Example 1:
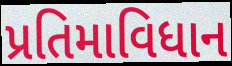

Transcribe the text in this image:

પ્રતિમાવિધાન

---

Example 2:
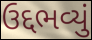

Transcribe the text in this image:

ઉદ્દભવ્યું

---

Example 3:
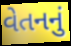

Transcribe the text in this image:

વેતનનું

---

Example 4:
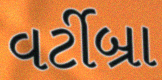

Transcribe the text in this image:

વર્ટીબ્રા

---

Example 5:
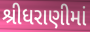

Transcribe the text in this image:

શ્રીધરાણીમાં